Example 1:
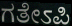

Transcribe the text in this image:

ಗತೇಽಪಿ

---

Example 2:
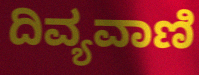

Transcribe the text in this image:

ದಿವ್ಯವಾಣಿ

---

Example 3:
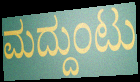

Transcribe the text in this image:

ಮದ್ದುಂಟು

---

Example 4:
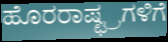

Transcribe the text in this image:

ಹೊರರಾಷ್ಟ್ರಗಳಿಗೆ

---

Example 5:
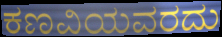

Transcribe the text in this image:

ಕಣವಿಯವರದು